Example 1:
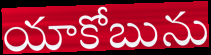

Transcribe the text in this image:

యాకోబును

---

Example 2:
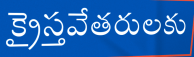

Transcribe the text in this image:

క్రైస్తవేతరులకు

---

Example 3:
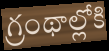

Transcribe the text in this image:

గ్రంథాల్లోకి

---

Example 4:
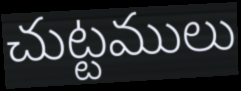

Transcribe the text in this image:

చుట్టములు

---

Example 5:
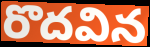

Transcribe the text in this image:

రొదవిన